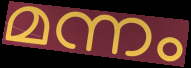
മന്നം